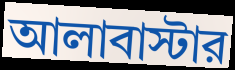
আলাবাস্টার